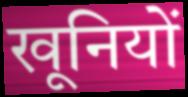
खूनियों